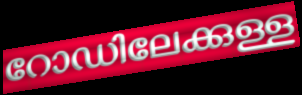
റോഡിലേക്കുള്ള